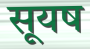
सूयष